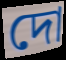
দো